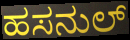
ಹಸನುಲ್